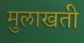
मुलाखती